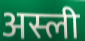
अस्ली